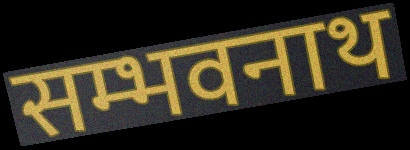
सम्भवनाथ